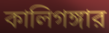
কালিগঙ্গার